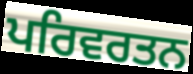
ਪਰਿਵਰਤਨ